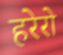
हरेरो